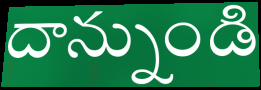
దాన్నుండి